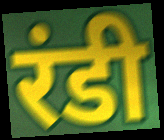
रंडी